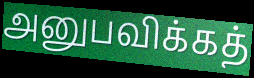
அனுபவிக்கத்